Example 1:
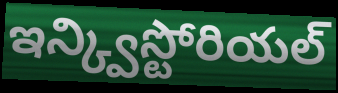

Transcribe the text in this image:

ఇన్క్విస్టోరియల్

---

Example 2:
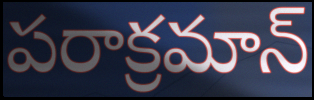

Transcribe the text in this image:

పరాక్రమాన్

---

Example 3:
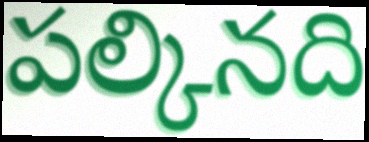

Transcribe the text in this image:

పల్కినది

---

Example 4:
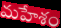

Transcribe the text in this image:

మహేశం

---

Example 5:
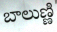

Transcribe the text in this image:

బాలుణ్ణి